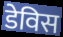
डेविस